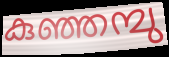
കുഞ്ഞമ്പു